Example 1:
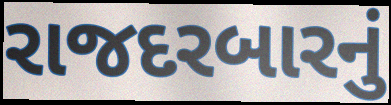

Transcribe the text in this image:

રાજદરબારનું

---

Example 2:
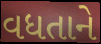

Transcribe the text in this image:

વધતાને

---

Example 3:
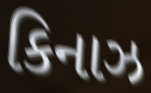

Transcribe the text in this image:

કિનાઝ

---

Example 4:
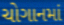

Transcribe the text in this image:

ચોગાનમાં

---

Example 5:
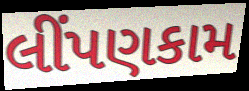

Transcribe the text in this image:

લીંપણકામ